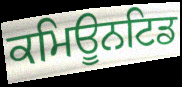
ਕਮਿਊਨਟਿਡ